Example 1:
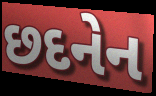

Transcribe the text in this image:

છદનેન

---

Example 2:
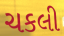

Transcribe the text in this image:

ચકલી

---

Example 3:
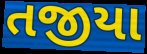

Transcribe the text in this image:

તજીયા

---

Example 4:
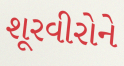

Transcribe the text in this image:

શૂરવીરોને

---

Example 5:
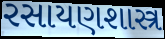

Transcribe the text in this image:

રસાયણશાસ્ત્ર